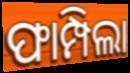
ଫାମ୍ପିଲା